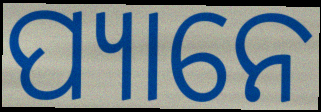
ପ୍ୟାନେ